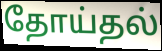
தோய்தல்